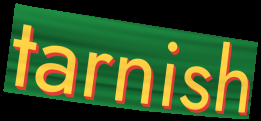
tarnish